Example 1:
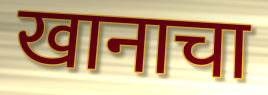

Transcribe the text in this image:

खानाचा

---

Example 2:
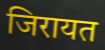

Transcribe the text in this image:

जिरायत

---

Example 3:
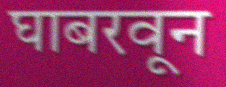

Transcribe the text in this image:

घाबरवून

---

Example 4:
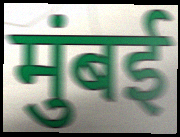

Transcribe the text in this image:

मुंबई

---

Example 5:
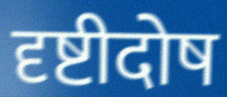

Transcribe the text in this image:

दृष्टीदोष